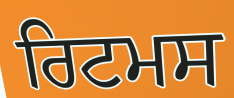
ਰਿਟਮਸ